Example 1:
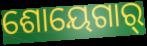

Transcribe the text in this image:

ଶୋୟେଗାର୍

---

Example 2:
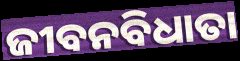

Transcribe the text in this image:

ଜୀବନବିଧାତା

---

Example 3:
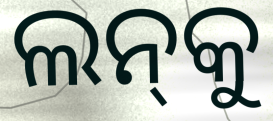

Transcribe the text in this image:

ଲନ୍‌କୁ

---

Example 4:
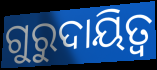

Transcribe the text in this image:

ଗୁରୁଦାୟିତ୍ଵ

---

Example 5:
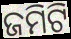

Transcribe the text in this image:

ଜମିଟି